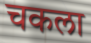
चकला